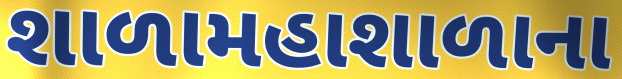
શાળામહાશાળાના